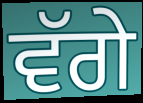
ਵੱਗੇ